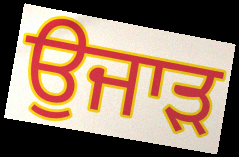
ਉਜਾੜ